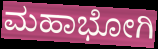
ಮಹಾಭೋಗಿ